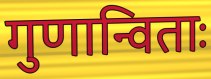
गुणान्विताः